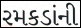
રમકડાંની